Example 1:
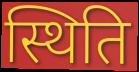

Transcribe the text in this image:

स्थिति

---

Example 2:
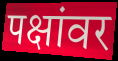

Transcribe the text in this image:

पक्षांवर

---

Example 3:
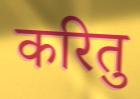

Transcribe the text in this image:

करितु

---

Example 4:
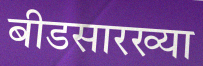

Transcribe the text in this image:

बीडसारख्या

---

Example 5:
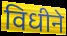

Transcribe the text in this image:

विधीने